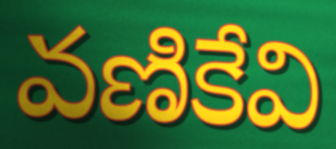
వణికేవి